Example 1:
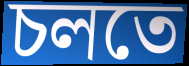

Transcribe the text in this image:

চলতে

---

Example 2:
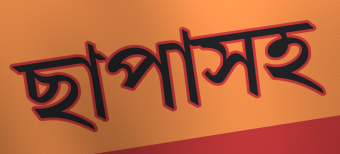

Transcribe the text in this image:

ছাপাসহ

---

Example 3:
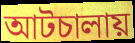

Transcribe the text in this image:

আটচালায়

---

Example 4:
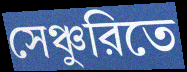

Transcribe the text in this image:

সেঞ্চুরিতে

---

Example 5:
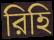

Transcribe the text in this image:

রিহি